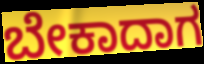
ಬೇಕಾದಾಗ